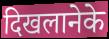
दिखलानेके